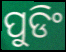
ପୁଡିଂ